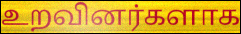
உறவினர்களாக